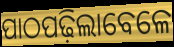
ପାଠପଢ଼ିଲାବେଳେ